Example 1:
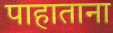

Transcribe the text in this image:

पाहाताना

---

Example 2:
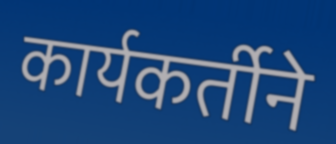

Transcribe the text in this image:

कार्यकर्तीने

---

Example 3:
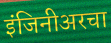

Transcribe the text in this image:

इंजिनीअरचा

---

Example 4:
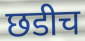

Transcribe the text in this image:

छडीच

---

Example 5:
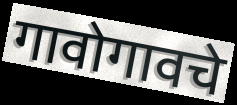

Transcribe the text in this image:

गावोगावचे